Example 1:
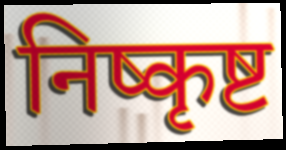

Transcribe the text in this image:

निष्कृष्ट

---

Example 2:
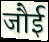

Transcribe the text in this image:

जौई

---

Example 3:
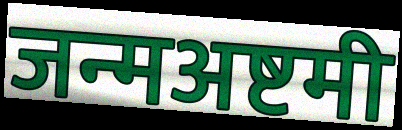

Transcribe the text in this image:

जन्मअष्टमी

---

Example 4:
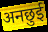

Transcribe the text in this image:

अनछुई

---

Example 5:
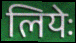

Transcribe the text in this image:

लियेः